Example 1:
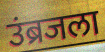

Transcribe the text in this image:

उंब्रजला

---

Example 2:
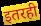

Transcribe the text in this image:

इतरही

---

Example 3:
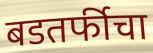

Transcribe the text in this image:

बडतर्फीचा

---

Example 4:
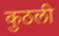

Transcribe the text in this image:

कुठली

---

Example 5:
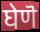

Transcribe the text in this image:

घेणॆ